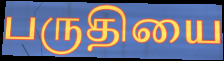
பருதியை